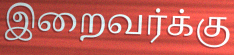
இறைவர்க்கு